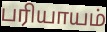
பரியாயம்